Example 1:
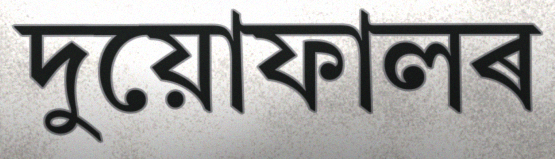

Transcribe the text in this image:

দুয়োফালৰ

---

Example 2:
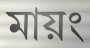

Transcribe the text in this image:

মায়ং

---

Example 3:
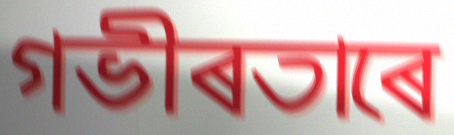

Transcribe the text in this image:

গভীৰতাৰে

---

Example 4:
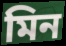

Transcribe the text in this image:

মিন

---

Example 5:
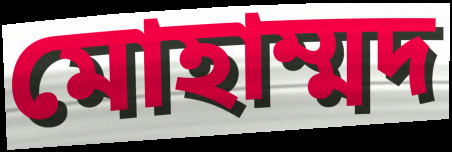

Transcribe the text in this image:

মোহাম্মদ